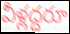
వీళ్లద్దరూ